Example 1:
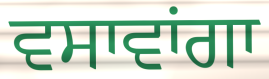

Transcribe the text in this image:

ਵਸਾਵਾਂਗਾ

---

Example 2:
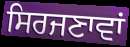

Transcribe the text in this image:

ਸਿਰਜਣਾਵਾਂ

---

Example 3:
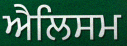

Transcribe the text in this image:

ਐਲਿਸਮ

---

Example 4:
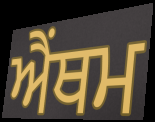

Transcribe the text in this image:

ਐਂਥਮ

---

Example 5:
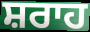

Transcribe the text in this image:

ਸ਼ਰਾਹ